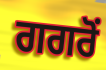
ਗਗਰੋਂ